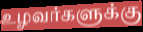
உழவர்களுக்கு